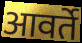
आवर्ते